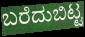
ಬರೆದುಬಿಟ್ಟ